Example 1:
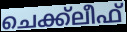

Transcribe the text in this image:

ചെക്ക്ലീഫ്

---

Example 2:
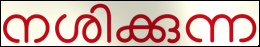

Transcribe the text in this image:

നശിക്കുന്ന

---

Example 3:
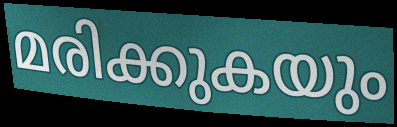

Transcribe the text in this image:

മരിക്കുകയും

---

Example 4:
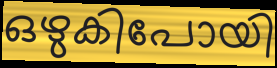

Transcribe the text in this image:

ഒഴുകിപോയി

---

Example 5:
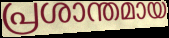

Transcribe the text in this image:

പ്രശാന്തമായ